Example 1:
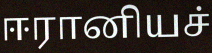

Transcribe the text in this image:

ஈரானியச்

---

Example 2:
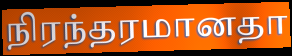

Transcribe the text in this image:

நிரந்தரமானதா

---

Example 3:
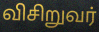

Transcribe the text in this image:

விசிறுவர்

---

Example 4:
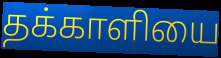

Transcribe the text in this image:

தக்காளியை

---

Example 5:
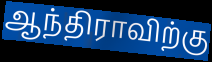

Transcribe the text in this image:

ஆந்திராவிற்கு